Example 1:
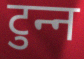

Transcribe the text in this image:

टुन्न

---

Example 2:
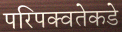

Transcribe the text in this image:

परिपक्वतेकडे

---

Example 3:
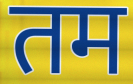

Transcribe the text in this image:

तम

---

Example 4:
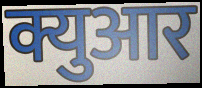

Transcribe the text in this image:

क्युआर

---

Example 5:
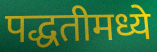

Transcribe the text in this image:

पद्धतीमध्ये